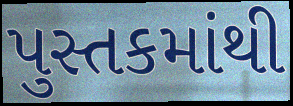
પુસ્તકમાંથી